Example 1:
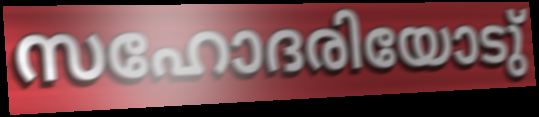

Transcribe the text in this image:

സഹോദരിയോടു്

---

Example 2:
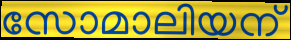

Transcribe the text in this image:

സോമാലിയന്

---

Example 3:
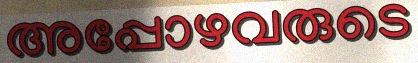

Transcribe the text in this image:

അപ്പോഴവരുടെ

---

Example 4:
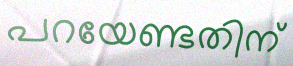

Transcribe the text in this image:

പറയേണ്ടതിന്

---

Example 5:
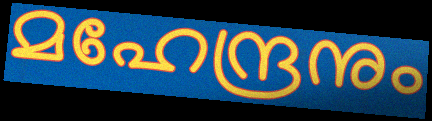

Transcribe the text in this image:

മഹേന്ദ്രനും